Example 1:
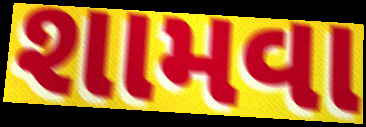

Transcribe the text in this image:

શામવા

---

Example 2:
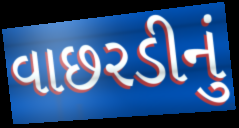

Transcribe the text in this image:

વાછરડીનું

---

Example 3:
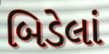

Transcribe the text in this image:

બિડેલાં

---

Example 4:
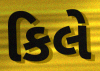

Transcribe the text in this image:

કિલે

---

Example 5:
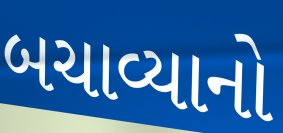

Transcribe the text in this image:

બચાવ્યાનો